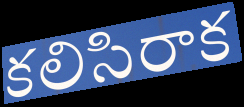
కలిసిరాక